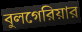
বুলগেরিয়ার